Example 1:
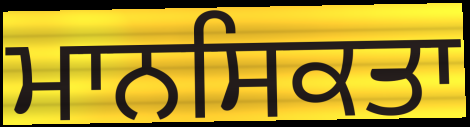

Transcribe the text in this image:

ਮਾਨਸਿਕਤਾ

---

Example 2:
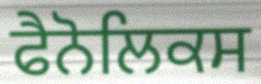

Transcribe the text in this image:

ਫੈਨੋਲਿਕਸ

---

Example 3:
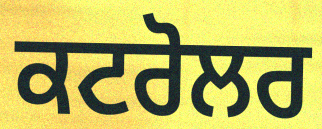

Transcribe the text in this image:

ਕਟਰੋਲਰ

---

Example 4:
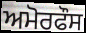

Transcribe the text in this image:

ਅਮੋਰਫੌਸ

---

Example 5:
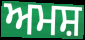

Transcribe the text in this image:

ਅਮਸ਼